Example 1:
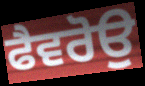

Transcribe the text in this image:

ਫੈਵਰੋਉ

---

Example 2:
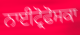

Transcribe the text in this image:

ਨਾਈਟ੍ਰੋਫੋਸਕਾ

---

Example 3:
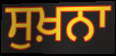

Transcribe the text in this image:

ਸੁਖ਼ਨਾ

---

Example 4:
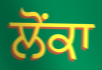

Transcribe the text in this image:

ਲੋਂਕਾ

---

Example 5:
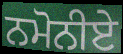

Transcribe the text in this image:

ਨਮੋਨੀਏ